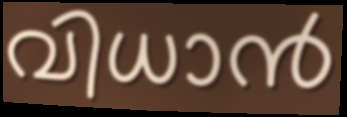
വിധാൻ